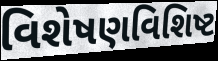
વિશેષણવિશિષ્ટ